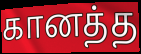
கானத்த